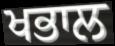
ਖਭਾਲ